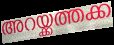
അറയ്ക്കത്തക്ക